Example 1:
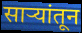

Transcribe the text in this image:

साऱ्यांतून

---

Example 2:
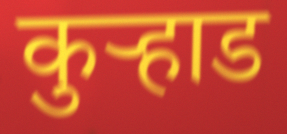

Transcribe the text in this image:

कुर्‍हाड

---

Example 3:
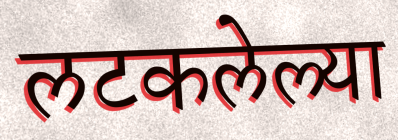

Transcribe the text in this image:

लटकलेल्या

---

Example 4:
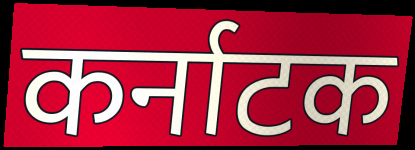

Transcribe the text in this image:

कर्नाटक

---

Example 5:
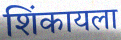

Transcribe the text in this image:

शिंकायला